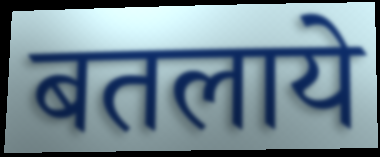
बतलाये